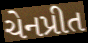
ચેનપ્રીત